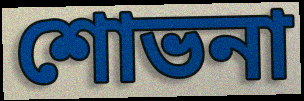
শোভনা